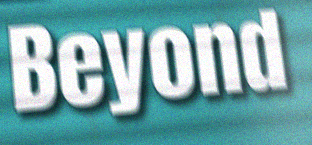
Beyond